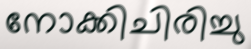
നോക്കിചിരിച്ചു